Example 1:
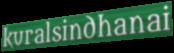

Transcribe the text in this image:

kuralsindhanai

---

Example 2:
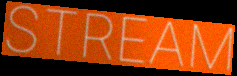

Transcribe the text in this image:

STREAM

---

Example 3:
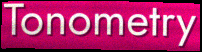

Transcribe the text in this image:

Tonometry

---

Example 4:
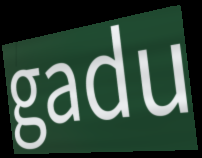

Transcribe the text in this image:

gadu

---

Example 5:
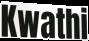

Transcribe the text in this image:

Kwathi